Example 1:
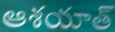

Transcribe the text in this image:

ఆశయాత్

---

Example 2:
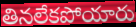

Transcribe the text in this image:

తినలేకపోయారు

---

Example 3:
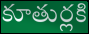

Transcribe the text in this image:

కూతుర్లకి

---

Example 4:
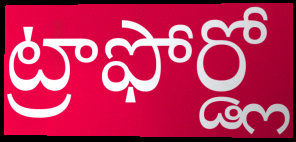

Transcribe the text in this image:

ట్రాఫోర్డ్లో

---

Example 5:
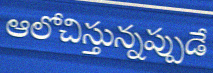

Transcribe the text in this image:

ఆలోచిస్తున్నప్పుడే